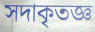
সদাকৃতজ্ঞ